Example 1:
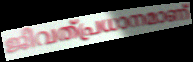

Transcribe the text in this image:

ജീവത്പ്രധാനമാണ്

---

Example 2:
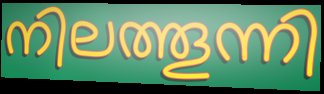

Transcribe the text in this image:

നിലത്തൂന്നി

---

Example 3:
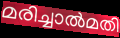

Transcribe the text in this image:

മരിച്ചാൽമതി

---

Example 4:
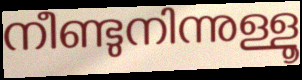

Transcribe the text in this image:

നീണ്ടുനിന്നുള്ളൂ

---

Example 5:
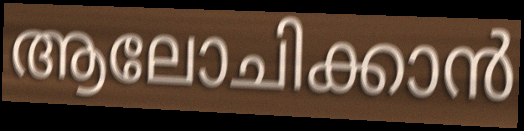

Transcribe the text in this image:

ആലോചിക്കാൻ